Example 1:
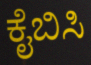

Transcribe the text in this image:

ಕೈಬಿಸಿ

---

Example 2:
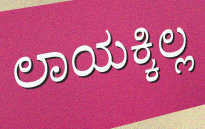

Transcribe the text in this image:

ಲಾಯಕ್ಕಿಲ್ಲ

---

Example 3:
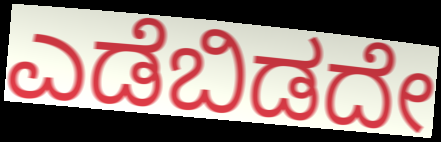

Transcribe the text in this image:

ಎಡೆಬಿಡದೇ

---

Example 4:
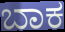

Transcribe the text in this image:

ಬಾಕ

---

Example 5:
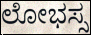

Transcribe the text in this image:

ಲೋಭಸ್ಸ